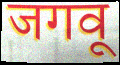
जगवू